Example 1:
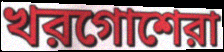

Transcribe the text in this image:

খরগোশেরা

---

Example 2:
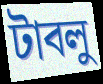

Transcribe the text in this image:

টাবলু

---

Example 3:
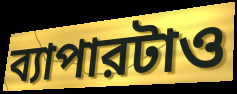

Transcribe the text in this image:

ব্যাপারটাও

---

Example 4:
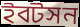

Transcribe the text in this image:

ইবটসন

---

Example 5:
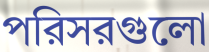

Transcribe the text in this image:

পরিসরগুলো